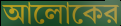
আলোকের